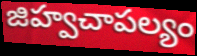
జిహ్వచాపల్యం